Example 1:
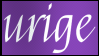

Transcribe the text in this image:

urige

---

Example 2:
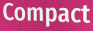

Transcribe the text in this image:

Compact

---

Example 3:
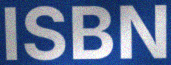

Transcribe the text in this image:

ISBN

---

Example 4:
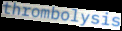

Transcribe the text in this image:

thrombolysis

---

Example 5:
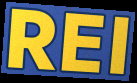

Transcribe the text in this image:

REI